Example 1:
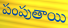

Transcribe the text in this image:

పంపుతాయి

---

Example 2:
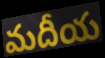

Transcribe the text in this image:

మదీయ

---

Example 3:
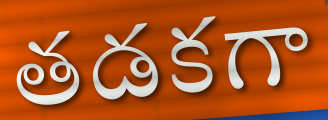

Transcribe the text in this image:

తడకగా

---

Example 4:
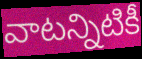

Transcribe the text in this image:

వాటన్నిటికీ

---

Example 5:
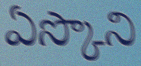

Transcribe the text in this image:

ఏస్కొని